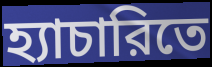
হ্যাচারিতে